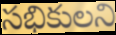
సభికులని